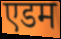
एडम